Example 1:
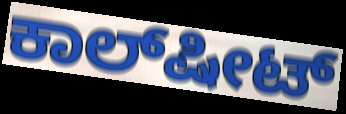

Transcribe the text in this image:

ಕಾಲ್‌ಷೀಟ್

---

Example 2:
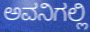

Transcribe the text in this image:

ಅವನಿಗಲ್ಲಿ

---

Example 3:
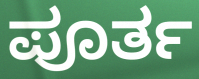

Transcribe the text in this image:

ಪೂರ್ತ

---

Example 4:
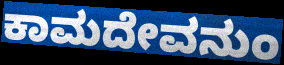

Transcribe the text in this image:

ಕಾಮದೇವನುಂ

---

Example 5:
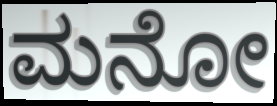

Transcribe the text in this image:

ಮನೋ